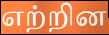
எற்றின